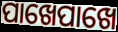
ପାଖେପାଖେ